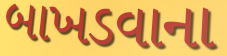
બાખડવાના